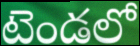
టెండలో